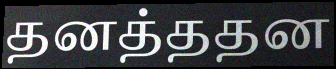
தனத்ததன